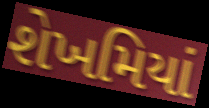
શેખમિયાં